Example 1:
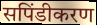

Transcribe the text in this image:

सपिंडीकरण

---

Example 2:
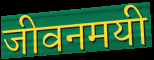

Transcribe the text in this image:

जीवनमयी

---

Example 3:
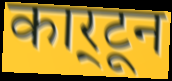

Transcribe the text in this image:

कार्टून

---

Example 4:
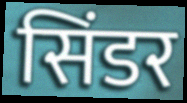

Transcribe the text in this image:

सिंडर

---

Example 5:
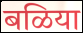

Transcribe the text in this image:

बळिया